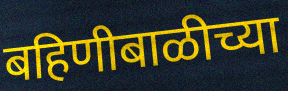
बहिणीबाळीच्या